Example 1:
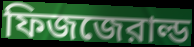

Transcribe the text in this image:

ফিজজেরাল্ড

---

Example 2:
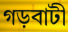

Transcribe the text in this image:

গড়বাটী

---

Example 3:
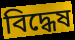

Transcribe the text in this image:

বিদ্ধেষ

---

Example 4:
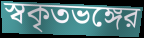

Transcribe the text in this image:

স্বকৃতভঙ্গের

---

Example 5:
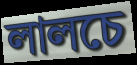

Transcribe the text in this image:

লালচে